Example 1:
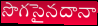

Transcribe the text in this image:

సొగసైనదానా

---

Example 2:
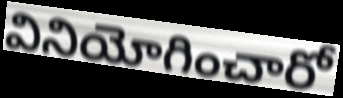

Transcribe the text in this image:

వినియోగించారో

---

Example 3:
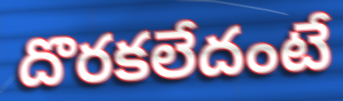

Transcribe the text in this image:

దొరకలేదంటే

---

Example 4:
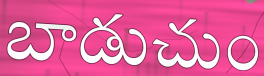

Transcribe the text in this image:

బాడుచుం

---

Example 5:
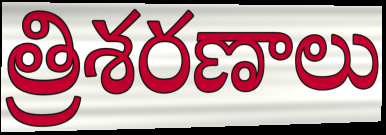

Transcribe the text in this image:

త్రిశరణాలు